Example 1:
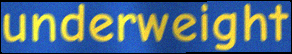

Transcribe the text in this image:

underweight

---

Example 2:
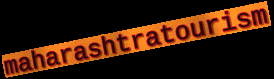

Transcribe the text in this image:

maharashtratourism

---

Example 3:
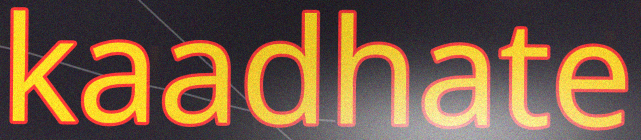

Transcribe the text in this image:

kaadhate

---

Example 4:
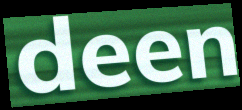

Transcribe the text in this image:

deen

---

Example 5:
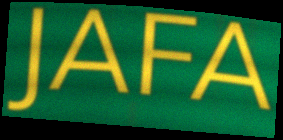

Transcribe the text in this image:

JAFA